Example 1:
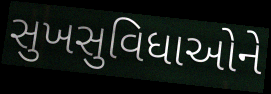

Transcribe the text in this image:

સુખસુવિધાઓને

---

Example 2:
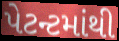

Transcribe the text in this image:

પેટન્ટમાંથી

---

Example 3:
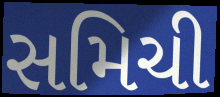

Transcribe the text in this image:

સમિચી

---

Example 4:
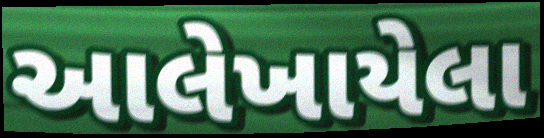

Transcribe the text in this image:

આલેખાયેલા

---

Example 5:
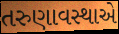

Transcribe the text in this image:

તરુણાવસ્થાએ